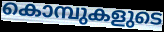
കൊമ്പുകളുടെ